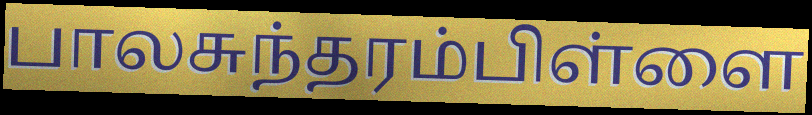
பாலசுந்தரம்பிள்ளை